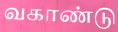
வகாண்டு